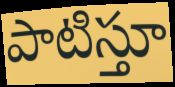
పాటిస్తూ